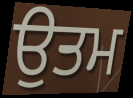
ਉਤਮ